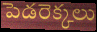
పెడరెక్కలు